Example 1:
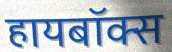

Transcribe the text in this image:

हायबॉक्स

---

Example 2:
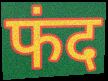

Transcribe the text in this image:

फंद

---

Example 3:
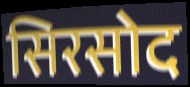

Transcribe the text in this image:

सिरसोद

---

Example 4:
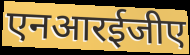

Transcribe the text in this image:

एनआरईजीए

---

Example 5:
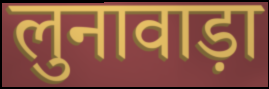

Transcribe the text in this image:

लुनावाड़ा